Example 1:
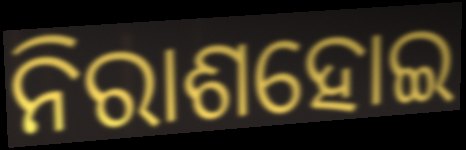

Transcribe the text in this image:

ନିରାଶହୋଇ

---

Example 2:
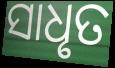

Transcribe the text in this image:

ସାଧୃତ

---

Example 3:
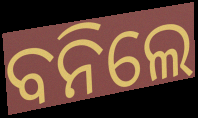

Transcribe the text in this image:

ବନିଲେ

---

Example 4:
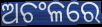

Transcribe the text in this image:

ଅଚଂଳରେ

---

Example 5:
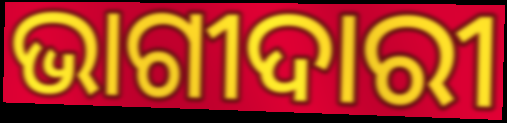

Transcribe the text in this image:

ଭାଗୀଦାରୀ